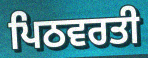
ਪਿਠਵਰਤੀ